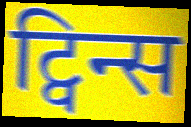
ट्विन्स